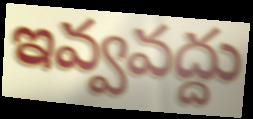
ఇవ్వవద్దు